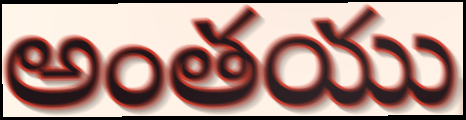
అంతయు